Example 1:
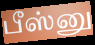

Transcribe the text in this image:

பீஸ்னு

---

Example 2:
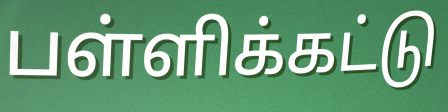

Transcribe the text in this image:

பள்ளிக்கட்டு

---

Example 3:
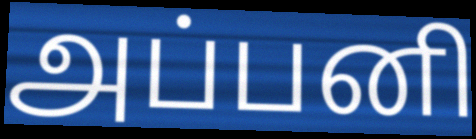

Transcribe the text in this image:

அப்பனி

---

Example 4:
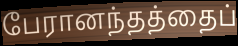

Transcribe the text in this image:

பேரானந்தத்தைப்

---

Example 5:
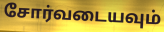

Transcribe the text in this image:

சோர்வடையவும்